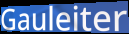
Gauleiter